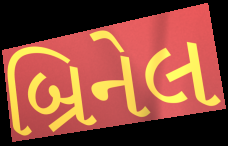
બ્રિનેલ